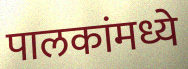
पालकांमध्ये